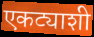
एकट्याशी